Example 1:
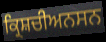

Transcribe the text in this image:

ਕ੍ਰਿਸ਼ਚੀਅਨਸਨ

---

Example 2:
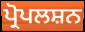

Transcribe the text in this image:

ਪ੍ਰੋਪਲਸ਼ਨ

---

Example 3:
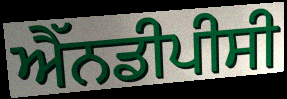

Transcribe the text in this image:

ਐੱਨਡੀਪੀਸੀ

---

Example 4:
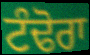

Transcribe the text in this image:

ਟੰਢੋਰਾ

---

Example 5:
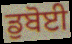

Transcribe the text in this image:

ਡੁਬੋਈ